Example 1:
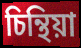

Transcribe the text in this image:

চিন্থিয়া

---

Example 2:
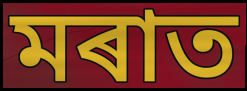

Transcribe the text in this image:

মৰাত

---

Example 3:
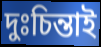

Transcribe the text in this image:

দুঃচিন্তাই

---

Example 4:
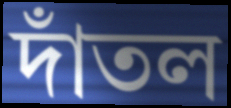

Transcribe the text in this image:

দাঁতল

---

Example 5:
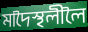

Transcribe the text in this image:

মাদৈস্থলীলৈ